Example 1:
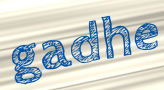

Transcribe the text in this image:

gadhe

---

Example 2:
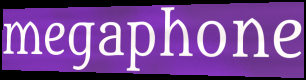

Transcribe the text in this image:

megaphone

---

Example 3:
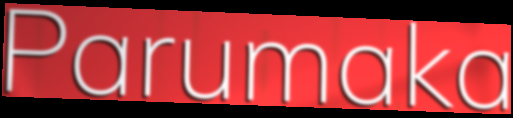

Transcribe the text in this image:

Parumaka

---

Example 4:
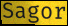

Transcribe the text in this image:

Sagor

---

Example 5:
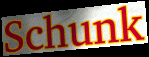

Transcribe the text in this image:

Schunk